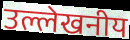
उल्लेखनीय